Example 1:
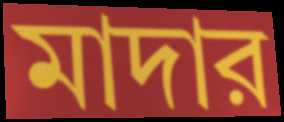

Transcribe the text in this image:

মাদার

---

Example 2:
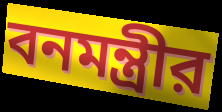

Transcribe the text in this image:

বনমন্ত্রীর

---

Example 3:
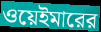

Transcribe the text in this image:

ওয়েইমারের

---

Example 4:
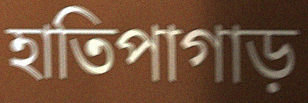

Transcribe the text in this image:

হাতিপাগাড়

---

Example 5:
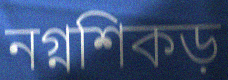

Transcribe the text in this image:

নগ্নশিকড়